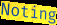
Noting